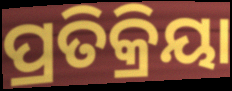
ପ୍ରତିକ୍ରିୟା